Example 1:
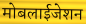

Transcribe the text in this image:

मोबलाईजेशन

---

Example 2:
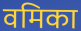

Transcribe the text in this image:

वमिका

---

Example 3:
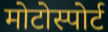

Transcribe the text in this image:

मोटोस्पोर्ट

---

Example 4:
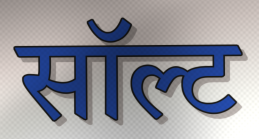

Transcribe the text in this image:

सॉल्ट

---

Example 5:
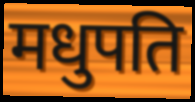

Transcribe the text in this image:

मधुपति